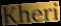
Kheri